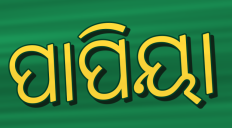
ପାପିୟା